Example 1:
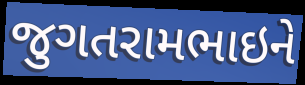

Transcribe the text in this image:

જુગતરામભાઇને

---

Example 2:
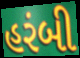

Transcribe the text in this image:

હરંબી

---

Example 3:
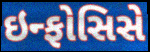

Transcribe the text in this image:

ઇન્ફોસિસે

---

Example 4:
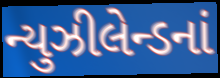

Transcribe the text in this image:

ન્યુઝીલેન્ડનાં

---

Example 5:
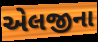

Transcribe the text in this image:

એલજીના